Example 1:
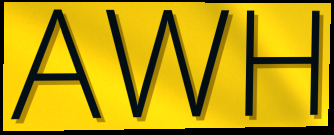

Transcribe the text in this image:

AWH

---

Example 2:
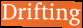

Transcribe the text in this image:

Drifting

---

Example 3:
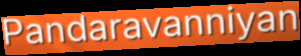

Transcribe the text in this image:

Pandaravanniyan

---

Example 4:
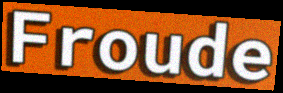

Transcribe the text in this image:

Froude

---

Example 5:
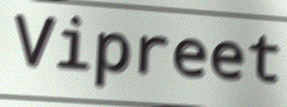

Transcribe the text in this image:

Vipreet